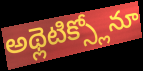
అథ్లెటిక్స్లోనూ